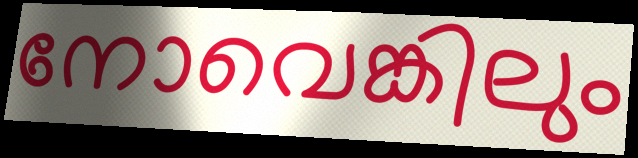
നോവെങ്കിലും